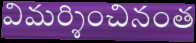
విమర్శించినంత